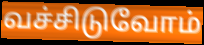
வச்சிடுவோம்